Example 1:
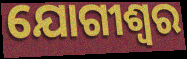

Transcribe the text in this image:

ଯୋଗୀଶ୍ୱର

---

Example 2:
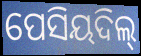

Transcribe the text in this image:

ପେସିୟଦିଲ୍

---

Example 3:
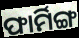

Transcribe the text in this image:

ଫାର୍ମିଙ୍ଗ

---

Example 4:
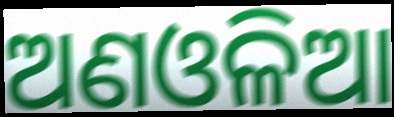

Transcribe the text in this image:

ଅଣଓଳିଆ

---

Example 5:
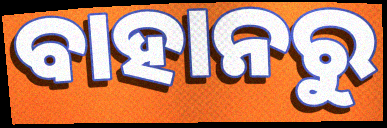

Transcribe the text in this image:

ବାହାନରୁ